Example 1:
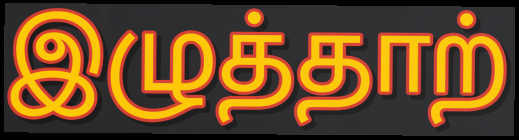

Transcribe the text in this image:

இழுத்தாற்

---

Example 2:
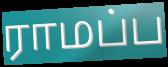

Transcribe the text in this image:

ராமப்ப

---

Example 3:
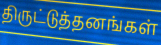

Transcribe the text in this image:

திருட்டுத்தனங்கள்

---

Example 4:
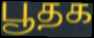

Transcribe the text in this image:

பூதக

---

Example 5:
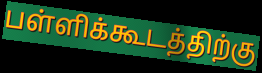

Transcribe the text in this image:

பள்ளிக்கூடத்திற்கு